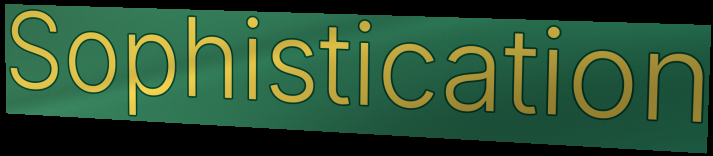
Sophistication